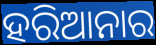
ହରିଆନାର